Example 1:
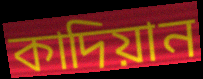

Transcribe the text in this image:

কাদিয়ান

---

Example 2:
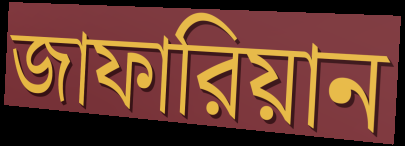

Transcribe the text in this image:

জাফারিয়ান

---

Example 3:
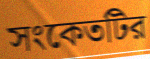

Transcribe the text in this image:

সংকেতটির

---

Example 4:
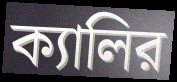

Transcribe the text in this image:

ক্যালির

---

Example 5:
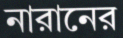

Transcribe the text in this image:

নারানের